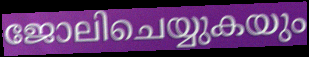
ജോലിചെയ്യുകയും